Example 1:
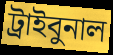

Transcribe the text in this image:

ট্রাইবুনাল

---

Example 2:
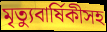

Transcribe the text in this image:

মৃত্যুবার্ষিকীসহ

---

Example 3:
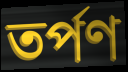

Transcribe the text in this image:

তর্পণ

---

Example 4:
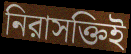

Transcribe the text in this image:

নিরাসক্তিই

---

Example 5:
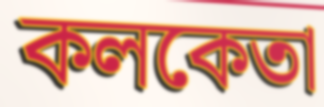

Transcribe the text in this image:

কলকেতা